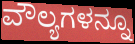
ವೌಲ್ಯಗಳನ್ನೂ